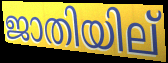
ജാതിയില്